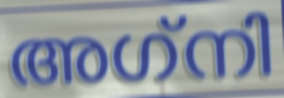
അഗ്‌നി